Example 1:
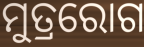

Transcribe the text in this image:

ମୁତ୍ରରୋଗ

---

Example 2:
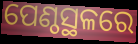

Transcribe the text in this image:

ପେଣ୍ଠସ୍ଥଳରେ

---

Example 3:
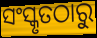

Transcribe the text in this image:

ସଂସ୍କୃତଠାରୁ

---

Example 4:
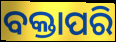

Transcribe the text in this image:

ବକ୍ତାପରି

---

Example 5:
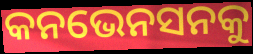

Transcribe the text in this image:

କନଭେନସନକୁ